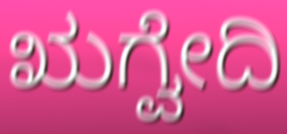
ಋಗ್ವೇದಿ